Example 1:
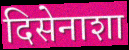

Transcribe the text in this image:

दिसेनाशा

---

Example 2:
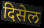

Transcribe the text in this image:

दिसेल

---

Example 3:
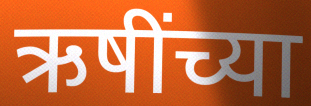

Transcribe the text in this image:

ऋषींच्या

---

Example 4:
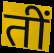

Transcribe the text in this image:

तीं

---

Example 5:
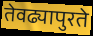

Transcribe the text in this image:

तेवढ्यापुरते